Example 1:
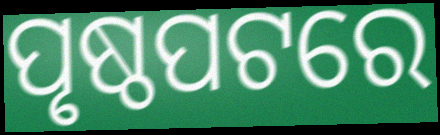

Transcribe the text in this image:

ପୃଷ୍ଠପଟରେ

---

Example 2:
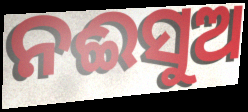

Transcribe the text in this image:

ନଈସୁଅ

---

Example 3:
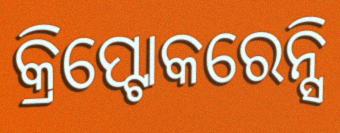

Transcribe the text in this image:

କ୍ରିପ୍ଟୋକରେନ୍ସି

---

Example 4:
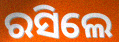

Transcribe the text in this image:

ରସିଲେ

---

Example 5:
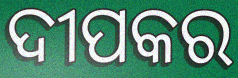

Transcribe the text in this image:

ଦୀପକର